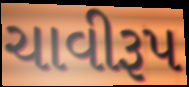
ચાવીરૂપ